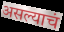
असल्याचं